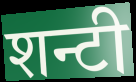
शन्टी